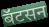
बॅटसन